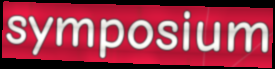
symposium